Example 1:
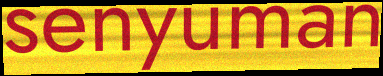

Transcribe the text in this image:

senyuman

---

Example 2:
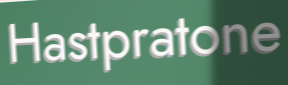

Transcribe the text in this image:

Hastpratone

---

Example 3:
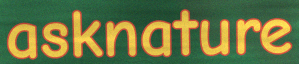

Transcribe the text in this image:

asknature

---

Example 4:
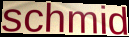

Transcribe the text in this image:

schmid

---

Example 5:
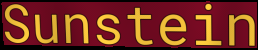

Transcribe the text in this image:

Sunstein